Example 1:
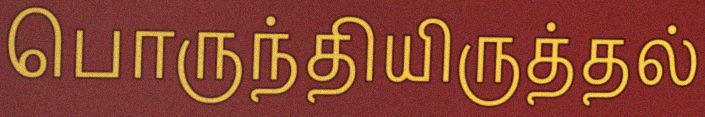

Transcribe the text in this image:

பொருந்தியிருத்தல்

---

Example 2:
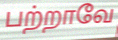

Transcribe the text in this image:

பற்றாவே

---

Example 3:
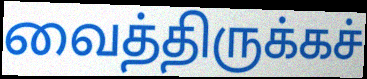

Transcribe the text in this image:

வைத்திருக்கச்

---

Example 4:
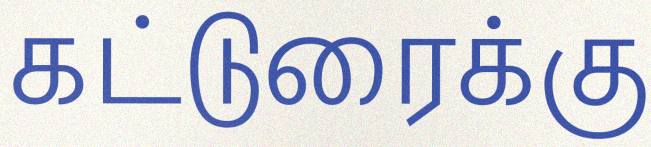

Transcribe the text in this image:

கட்டுரைக்கு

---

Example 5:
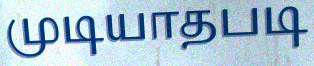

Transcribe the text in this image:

முடியாதபடி